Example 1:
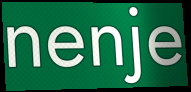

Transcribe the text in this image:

nenje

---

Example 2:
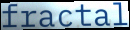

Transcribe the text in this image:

fractal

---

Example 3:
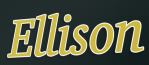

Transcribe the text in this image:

Ellison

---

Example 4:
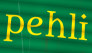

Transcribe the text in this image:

pehli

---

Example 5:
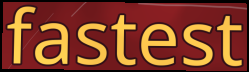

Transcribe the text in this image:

fastest